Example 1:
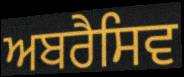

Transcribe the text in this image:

ਅਬਰੈਸਿਵ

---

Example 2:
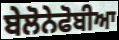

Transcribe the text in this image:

ਬੇਲੋਨੇਫੋਬੀਆ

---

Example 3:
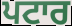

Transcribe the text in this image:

ਪਟਾਰ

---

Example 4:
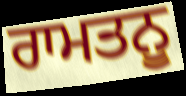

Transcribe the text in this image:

ਰਾਮਤਨੂ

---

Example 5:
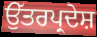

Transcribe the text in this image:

ਉੱਤਰਪ੍ਰਦੇਸ਼